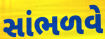
સાંભળવે